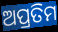
ଅପ୍ରତିମ